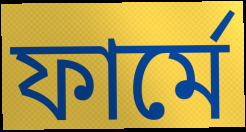
ফার্মে